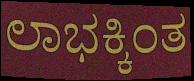
ಲಾಭಕ್ಕಿಂತ